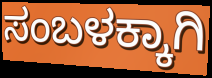
ಸಂಬಳಕ್ಕಾಗಿ